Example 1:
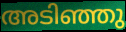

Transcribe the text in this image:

അടിഞ്ഞു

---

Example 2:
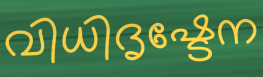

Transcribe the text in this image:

വിധിദൃഷ്ടേന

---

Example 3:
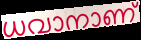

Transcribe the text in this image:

ധവാനാണ്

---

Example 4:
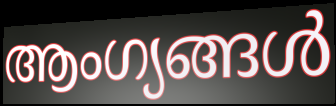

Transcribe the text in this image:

ആംഗ്യങ്ങൾ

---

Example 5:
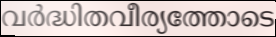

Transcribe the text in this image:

വർദ്ധിതവീര്യത്തോടെ